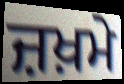
ਜ਼ਖ਼ਮੇ